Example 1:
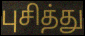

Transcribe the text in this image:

புசித்து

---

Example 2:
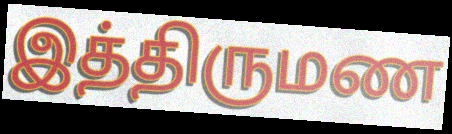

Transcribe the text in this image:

இத்திருமண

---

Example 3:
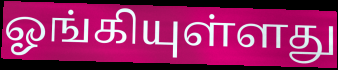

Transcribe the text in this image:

ஓங்கியுள்ளது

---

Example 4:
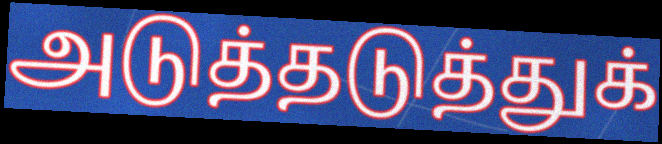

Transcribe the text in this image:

அடுத்தடுத்துக்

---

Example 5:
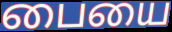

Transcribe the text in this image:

பையை